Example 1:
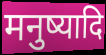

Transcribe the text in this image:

मनुष्यादि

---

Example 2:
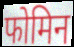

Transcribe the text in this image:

फोमिन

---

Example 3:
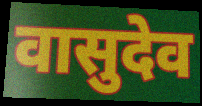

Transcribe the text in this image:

वासुदेव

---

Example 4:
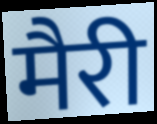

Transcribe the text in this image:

मैरी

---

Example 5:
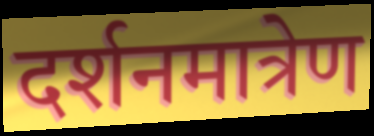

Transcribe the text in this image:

दर्शनमात्रेण